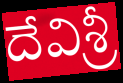
దేవిశ్రీ